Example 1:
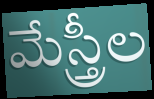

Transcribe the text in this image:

మేస్త్రీల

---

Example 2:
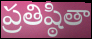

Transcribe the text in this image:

ప్రతిష్ఠితా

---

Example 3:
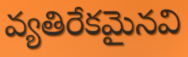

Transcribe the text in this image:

వ్యతిరేకమైనవి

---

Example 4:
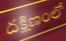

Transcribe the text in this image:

దక్షిణంలో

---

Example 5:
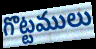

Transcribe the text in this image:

గొట్టములు